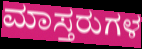
ಮಾಸ್ತರುಗಳ